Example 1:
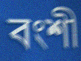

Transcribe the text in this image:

বংশী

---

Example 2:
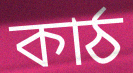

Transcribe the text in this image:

কাঠ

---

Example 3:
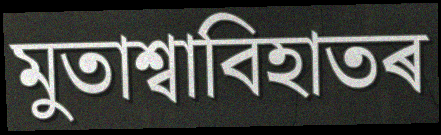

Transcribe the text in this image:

মুতাশ্বাবিহাতৰ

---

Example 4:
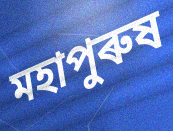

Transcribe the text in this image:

মহাপুৰুষ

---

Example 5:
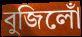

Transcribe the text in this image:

বুজিলোঁ